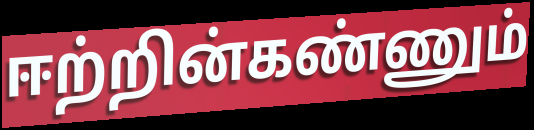
ஈற்றின்கண்ணும்